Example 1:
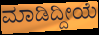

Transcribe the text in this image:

ಮಾಡಿದ್ದೀಯೆ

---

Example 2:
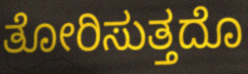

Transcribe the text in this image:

ತೋರಿಸುತ್ತದೊ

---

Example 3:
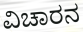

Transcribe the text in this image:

ವಿಚಾರನ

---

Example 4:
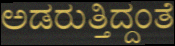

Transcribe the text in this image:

ಅಡರುತ್ತಿದ್ದಂತೆ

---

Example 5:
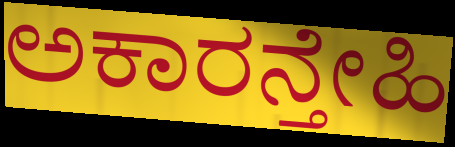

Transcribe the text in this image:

ಅಕಾರನ್ತೇಹಿ